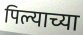
पिल्याच्या